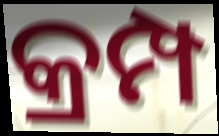
କ୍ରମ୍ପ